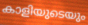
കാളിയുടെയും